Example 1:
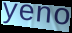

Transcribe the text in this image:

yeno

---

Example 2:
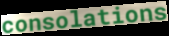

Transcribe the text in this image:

consolations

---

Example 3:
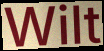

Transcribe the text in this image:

Wilt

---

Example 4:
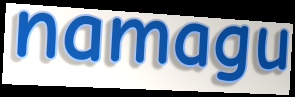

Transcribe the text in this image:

namagu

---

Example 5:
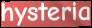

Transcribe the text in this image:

hysteria